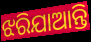
ଝରିଯାଆନ୍ତି